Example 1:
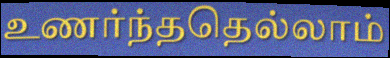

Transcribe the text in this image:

உணர்ந்ததெல்லாம்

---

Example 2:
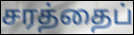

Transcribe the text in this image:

சரத்தைப்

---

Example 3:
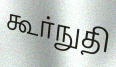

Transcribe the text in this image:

கூர்நுதி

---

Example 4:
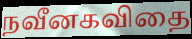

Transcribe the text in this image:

நவீனகவிதை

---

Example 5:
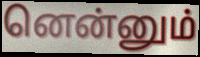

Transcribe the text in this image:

னென்னும்